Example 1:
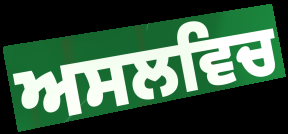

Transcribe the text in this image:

ਅਸਲਵਿਚ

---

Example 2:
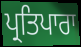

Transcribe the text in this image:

ਪ੍ਰਤਿਪਾਰਾ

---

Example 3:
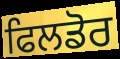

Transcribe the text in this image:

ਫਿਲਡੋਰ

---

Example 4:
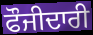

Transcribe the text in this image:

ਫੌਜੀਦਾਰੀ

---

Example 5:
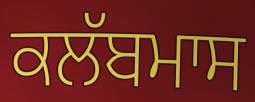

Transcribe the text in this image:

ਕਲੱਬਮਾਸ